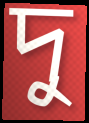
দু